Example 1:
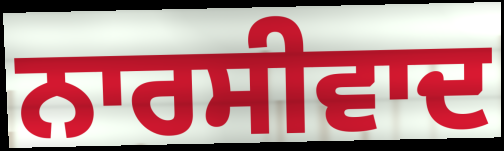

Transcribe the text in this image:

ਨਾਰਸੀਵਾਦ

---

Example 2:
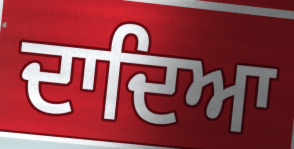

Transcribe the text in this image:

ਦਾਦਿਆ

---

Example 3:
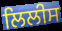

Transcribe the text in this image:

ਲਿਲੀਸ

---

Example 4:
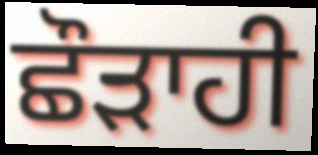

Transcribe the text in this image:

ਛੌੜਾਹੀ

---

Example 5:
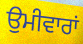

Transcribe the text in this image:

ਉਮੀਵਾਰਾਂ